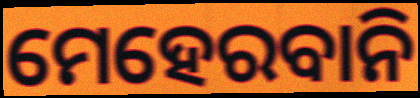
ମେହେରବାନି